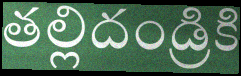
తల్లిదండ్రికి